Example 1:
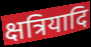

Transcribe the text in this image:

क्षत्रियादि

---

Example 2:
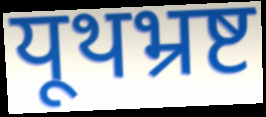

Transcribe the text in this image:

यूथभ्रष्ट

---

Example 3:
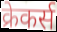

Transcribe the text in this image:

क्रेकर्स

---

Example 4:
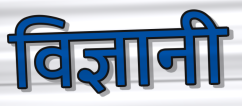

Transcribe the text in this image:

विज्ञानी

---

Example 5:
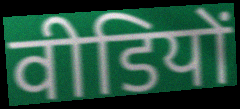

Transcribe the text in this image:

वीडियों